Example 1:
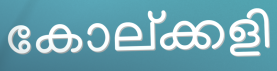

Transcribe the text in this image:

കോല്ക്കളി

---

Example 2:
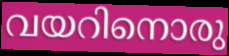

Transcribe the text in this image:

വയറിനൊരു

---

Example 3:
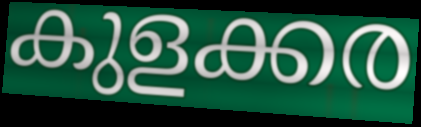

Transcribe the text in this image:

കുളക്കര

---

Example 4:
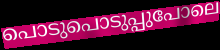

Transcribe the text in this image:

പൊടുപൊടുപ്പുപോലെ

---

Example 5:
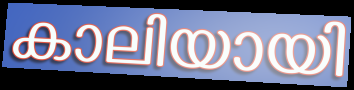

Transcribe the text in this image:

കാലിയായി